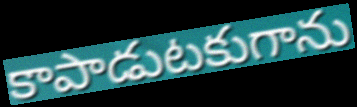
కాపాడుటకుగాను